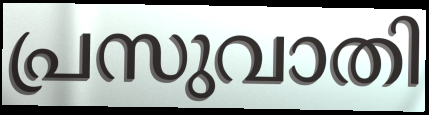
പ്രസുവാതി